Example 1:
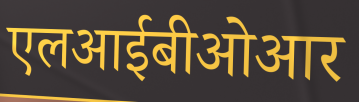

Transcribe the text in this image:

एलआईबीओआर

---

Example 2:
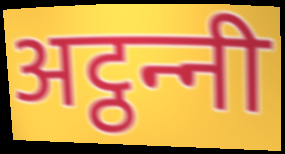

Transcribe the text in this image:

अट्ठन्नी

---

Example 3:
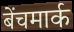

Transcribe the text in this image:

बेंचमार्क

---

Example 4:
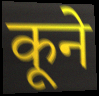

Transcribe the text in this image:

कूने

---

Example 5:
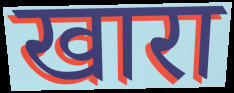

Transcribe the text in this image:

खारा